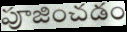
పూజించడం